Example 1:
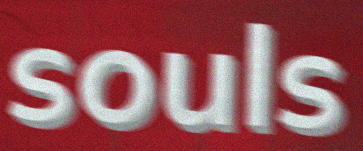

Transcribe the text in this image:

souls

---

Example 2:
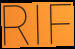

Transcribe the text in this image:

RIF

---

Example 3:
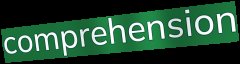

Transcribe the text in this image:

comprehension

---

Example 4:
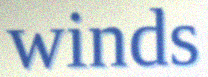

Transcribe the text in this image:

winds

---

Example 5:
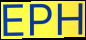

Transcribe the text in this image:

EPH